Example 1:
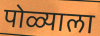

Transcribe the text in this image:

पोळ्याला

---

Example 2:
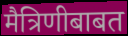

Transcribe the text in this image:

मैत्रिणीबाबत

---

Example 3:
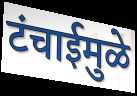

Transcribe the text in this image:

टंचाईमुळे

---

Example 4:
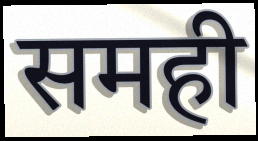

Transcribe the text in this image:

समही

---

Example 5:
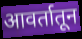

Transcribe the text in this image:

आवर्तातून